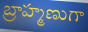
బ్రాహ్మణుగా